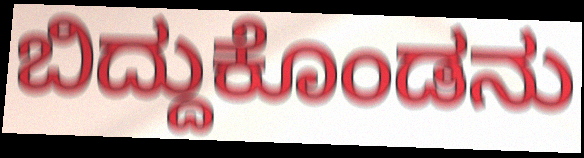
ಬಿದ್ದುಕೊಂಡನು